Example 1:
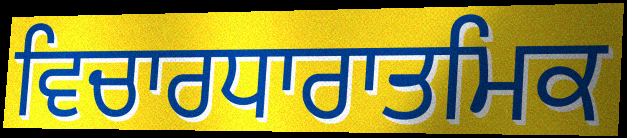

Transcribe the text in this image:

ਵਿਚਾਰਧਾਰਾਤਮਿਕ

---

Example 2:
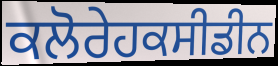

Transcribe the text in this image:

ਕਲੋਰੇਹਕਸੀਡੀਨ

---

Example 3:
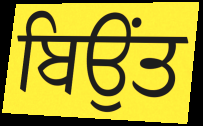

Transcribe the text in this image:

ਬਿਉਂਤ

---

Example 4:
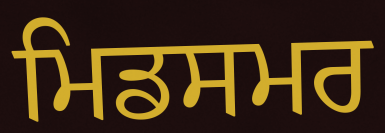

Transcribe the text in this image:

ਮਿਡਸਮਰ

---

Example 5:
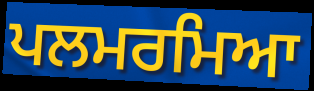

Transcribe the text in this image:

ਪਲਮਰਮਿਆ